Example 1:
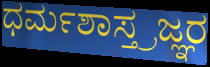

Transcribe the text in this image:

ಧರ್ಮಶಾಸ್ತ್ರಜ್ಞರ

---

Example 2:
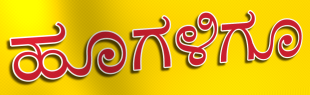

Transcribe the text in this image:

ಹೂಗಳಿಗೂ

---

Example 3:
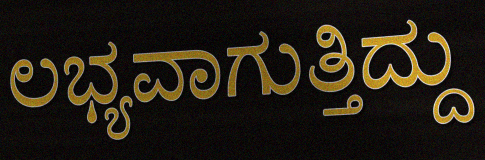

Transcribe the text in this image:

ಲಭ್ಯವಾಗುತ್ತಿದ್ದು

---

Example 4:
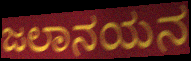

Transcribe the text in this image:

ಜಲಾನಯನ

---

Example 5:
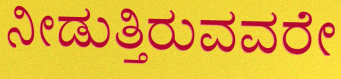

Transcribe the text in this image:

ನೀಡುತ್ತಿರುವವರೇ